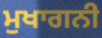
ਮੁਖਾਗਨੀ